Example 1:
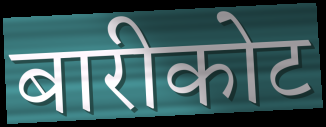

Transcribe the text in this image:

बारीकोट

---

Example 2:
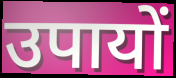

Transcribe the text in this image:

उपायों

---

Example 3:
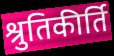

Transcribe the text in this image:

श्रुतिकीर्ति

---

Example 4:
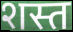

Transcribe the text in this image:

शस्त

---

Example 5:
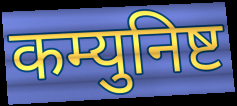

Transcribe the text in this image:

कम्युनिष्ट